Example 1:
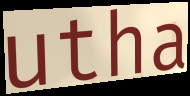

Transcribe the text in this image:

utha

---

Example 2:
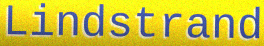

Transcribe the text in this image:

Lindstrand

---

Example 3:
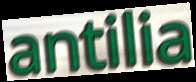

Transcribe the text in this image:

antilia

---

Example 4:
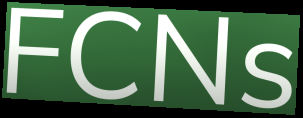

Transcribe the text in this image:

FCNs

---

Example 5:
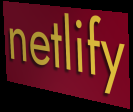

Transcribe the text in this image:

netlify